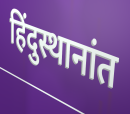
हिंदुस्थानांत